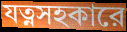
যত্নসহকারে